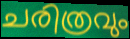
ചരിത്രവും